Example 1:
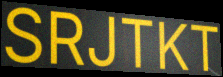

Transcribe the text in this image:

SRJTKT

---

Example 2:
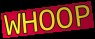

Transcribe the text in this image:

WHOOP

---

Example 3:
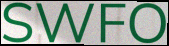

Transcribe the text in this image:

SWFO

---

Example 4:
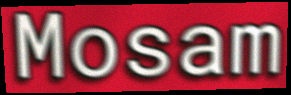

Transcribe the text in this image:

Mosam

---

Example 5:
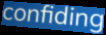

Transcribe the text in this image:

confiding